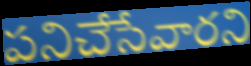
పనిచేసేవారని